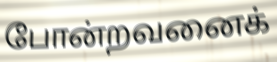
போன்றவனைக்